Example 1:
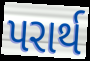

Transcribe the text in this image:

પરાર્થ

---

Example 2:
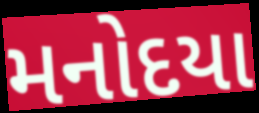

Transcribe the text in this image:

મનોદયા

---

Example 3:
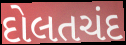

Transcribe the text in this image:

દોલતચંદ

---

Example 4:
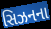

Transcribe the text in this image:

સિઝનના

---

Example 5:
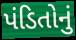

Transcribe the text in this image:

પંડિતોનું